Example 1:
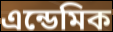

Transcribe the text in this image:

এন্ডেমিক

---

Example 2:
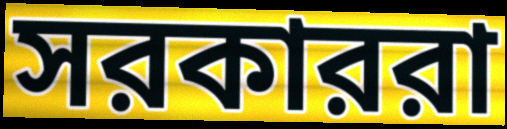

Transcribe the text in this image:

সরকাররা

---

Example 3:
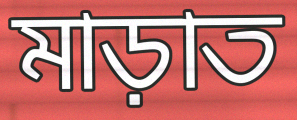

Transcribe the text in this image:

মাড়াত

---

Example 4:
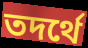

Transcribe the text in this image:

তদর্থে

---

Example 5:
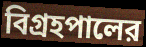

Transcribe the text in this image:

বিগ্রহপালের